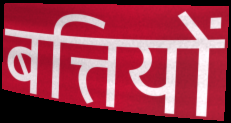
बत्तियों